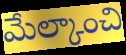
మేల్కాంచి